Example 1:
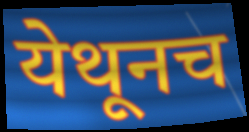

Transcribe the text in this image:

येथूनच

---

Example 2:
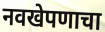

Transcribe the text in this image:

नवखेपणाचा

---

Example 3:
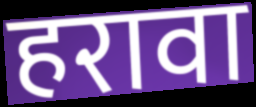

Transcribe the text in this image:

हरावा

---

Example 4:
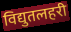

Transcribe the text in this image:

विद्युतलहरी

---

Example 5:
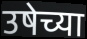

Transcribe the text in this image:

उषेच्या